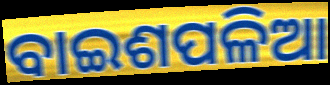
ବାଇଶପଳିଆ